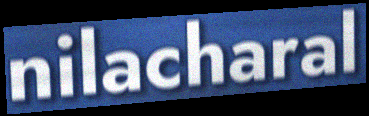
nilacharal